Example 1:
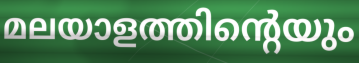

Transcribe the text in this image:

മലയാളത്തിന്റെയും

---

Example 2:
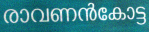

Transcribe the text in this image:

രാവണൻകോട്ട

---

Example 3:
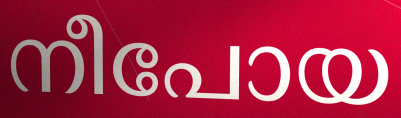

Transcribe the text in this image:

നീപോയ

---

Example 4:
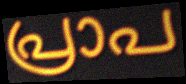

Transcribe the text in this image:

പ്രാപ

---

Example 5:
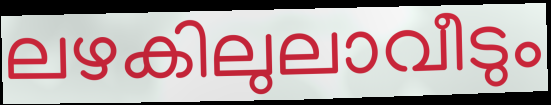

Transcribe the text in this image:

ലഴകിലുലാവീടും